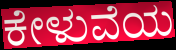
ಕೇಳುವೆಯ